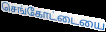
செங்கோட்டையை